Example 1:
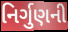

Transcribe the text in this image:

નિર્ગુણની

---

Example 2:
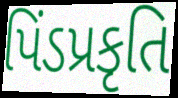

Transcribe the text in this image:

પિંડપ્રકૃતિ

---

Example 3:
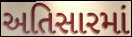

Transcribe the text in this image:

અતિસારમાં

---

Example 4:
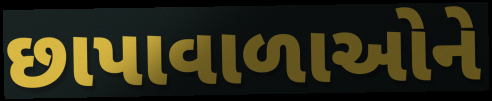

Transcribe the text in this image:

છાપાવાળાઓને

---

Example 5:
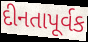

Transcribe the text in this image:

દીનતાપૂર્વક